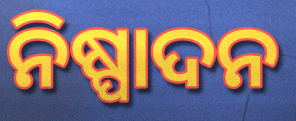
ନିଷ୍ପାଦନ